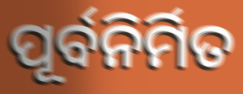
ପୂର୍ବନିର୍ମିତ